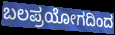
ಬಲಪ್ರಯೋಗದಿಂದ